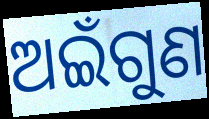
ଅଇଁଗୁଣ